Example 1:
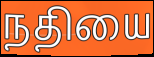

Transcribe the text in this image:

நதியை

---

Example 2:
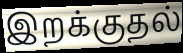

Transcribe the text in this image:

இறக்குதல்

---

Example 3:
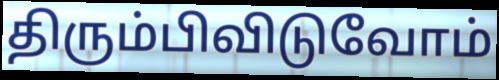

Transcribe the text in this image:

திரும்பிவிடுவோம்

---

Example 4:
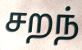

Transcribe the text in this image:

சறந்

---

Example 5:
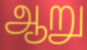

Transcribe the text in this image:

ஆறு